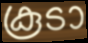
കൂടാ